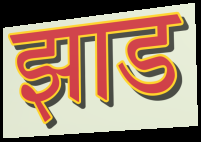
झाड